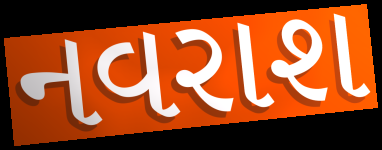
નવરાશ